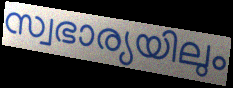
സ്വഭാര്യയിലും